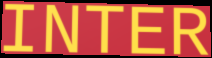
INTER